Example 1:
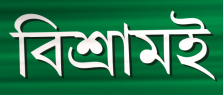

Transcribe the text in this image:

বিশ্রামই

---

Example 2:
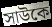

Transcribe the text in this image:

সাউকে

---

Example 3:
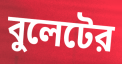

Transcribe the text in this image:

বুলেটের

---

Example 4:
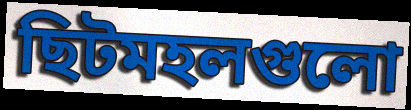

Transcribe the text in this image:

ছিটমহলগুলো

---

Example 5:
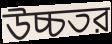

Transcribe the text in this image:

উচ্চতর